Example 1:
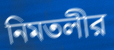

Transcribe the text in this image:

নিমতলীর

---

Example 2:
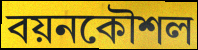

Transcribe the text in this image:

বয়নকৌশল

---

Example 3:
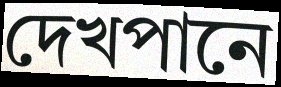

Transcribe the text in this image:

দেখপানে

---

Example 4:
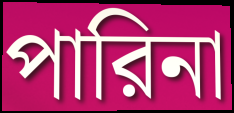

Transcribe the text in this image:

পারিনা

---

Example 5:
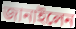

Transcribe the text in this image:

জানাইলেন